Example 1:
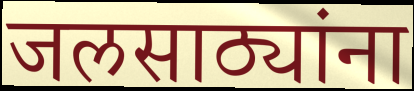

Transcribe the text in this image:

जलसाठ्यांना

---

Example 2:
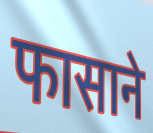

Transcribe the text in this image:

फासाने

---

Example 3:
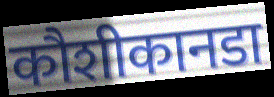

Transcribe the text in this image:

कौशीकानडा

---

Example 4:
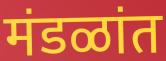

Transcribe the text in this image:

मंडळांत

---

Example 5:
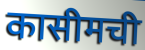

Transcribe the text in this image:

कासीमची